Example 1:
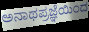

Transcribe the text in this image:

ಅನಾಥಪ್ರಜ್ಞೆಯಿಂದ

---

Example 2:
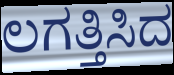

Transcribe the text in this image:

ಲಗತ್ತಿಸಿದ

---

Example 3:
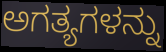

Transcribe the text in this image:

ಅಗತ್ಯಗಳನ್ನು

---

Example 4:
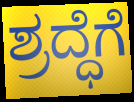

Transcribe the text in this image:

ಶ್ರದ್ಧೆಗೆ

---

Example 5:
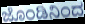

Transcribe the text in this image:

ಜೊಂಡಿನಿಂದ